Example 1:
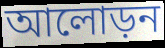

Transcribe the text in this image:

আলোড়ন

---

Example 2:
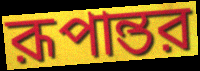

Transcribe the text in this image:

রূপান্তর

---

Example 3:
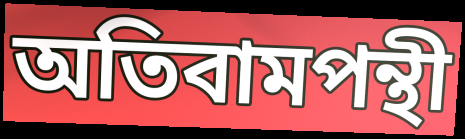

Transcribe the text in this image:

অতিবামপন্থী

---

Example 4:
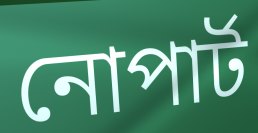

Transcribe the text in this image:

নোপার্ট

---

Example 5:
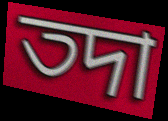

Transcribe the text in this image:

তদা